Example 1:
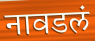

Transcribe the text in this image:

नावडलं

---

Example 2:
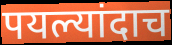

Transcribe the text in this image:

पयल्यांदाच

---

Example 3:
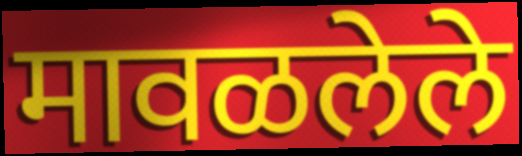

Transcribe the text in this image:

मावळलेले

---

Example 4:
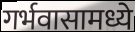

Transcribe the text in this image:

गर्भवासामध्ये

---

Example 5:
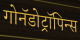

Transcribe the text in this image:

गोनॅडोट्रॉपिन्स